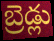
బ్రెడ్లు